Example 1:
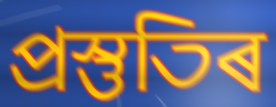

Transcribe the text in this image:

প্ৰস্তুতিৰ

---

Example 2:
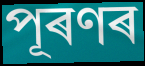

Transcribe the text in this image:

পূৰণৰ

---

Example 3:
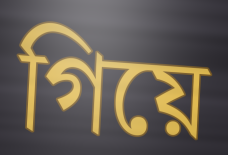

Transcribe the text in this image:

গিয়ে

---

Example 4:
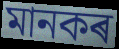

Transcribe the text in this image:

মানকৰ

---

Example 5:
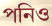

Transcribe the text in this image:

পনিও